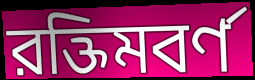
রক্তিমবর্ণ